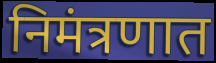
निमंत्रणात